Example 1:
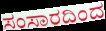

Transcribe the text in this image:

ಸಂಸಾರದಿಂದ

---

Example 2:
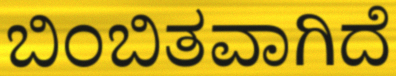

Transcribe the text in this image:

ಬಿಂಬಿತವಾಗಿದೆ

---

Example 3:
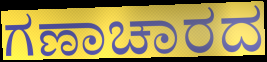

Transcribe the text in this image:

ಗಣಾಚಾರದ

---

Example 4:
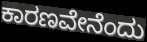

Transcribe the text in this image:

ಕಾರಣವೇನೆಂದು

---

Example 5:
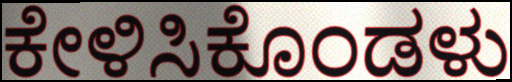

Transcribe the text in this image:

ಕೇಳಿಸಿಕೊಂಡಳು